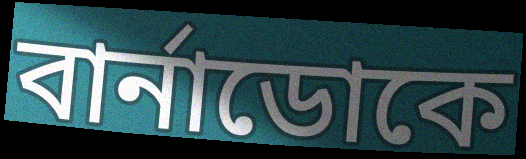
বার্নাডোকে